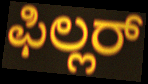
ಫಿಲ್ಲರ್